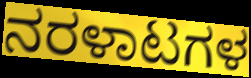
ನರಳಾಟಗಳ